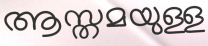
ആസ്തമയുള്ള